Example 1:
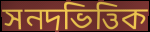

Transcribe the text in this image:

সনদভিত্তিক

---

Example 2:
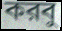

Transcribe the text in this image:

করবু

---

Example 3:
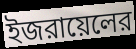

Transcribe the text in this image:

ইজরায়েলের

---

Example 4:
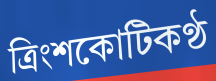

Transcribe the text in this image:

ত্রিংশকোটিকণ্ঠ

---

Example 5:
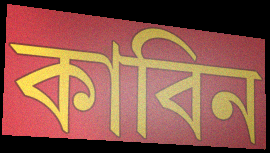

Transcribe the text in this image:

কাবিন